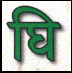
घि